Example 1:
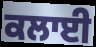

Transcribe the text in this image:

ਕਲਾਈ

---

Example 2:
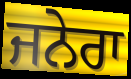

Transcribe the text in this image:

ਜਨੇਰਾ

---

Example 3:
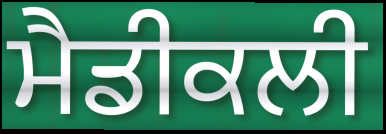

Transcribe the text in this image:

ਮੈਡੀਕਲੀ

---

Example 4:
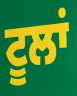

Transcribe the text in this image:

ਟੂਲਾਂ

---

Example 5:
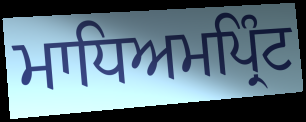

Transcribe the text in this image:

ਮਾਧਿਅਮਪ੍ਰਿੰਟ